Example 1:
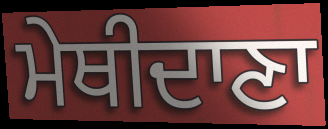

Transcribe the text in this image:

ਮੇਥੀਦਾਣਾ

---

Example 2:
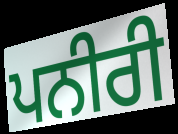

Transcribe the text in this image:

ਪਨੀਰੀ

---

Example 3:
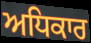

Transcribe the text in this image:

ਅਧਿਕਾਰ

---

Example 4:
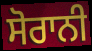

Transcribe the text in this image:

ਸੋਰਾਨੀ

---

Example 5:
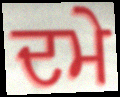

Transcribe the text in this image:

ਦਮੇ